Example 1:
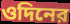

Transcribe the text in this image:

ওদিনের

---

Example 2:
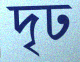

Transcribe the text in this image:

দৃঢ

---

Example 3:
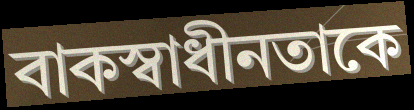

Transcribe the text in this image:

বাকস্বাধীনতাকে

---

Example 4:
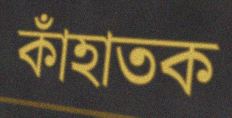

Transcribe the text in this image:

কাঁহাতক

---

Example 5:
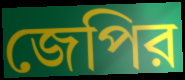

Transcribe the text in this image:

জেপির